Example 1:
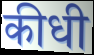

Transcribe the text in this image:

कीधी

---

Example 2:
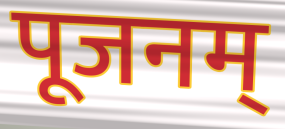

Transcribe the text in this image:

पूजनम्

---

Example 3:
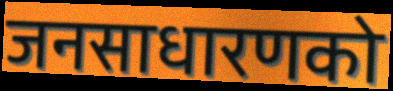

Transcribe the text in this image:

जनसाधारणको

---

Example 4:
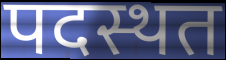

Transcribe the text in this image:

पदस्थत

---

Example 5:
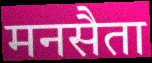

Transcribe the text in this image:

मनसैता